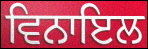
ਵਿਨਾਇਲ